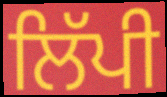
ਲਿੱਪੀ